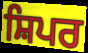
ਸ਼ਿਪਰ